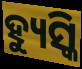
ହ୍ୟୁସ୍କି